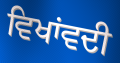
ਵਿਖਾਂਵਦੀ